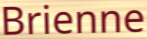
Brienne